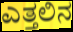
ಎತ್ತಲಿನ